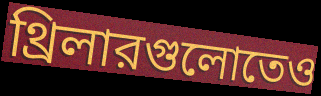
থ্রিলারগুলোতেও